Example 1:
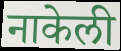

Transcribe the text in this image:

नाकेली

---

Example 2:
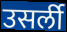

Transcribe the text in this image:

उसर्ली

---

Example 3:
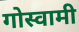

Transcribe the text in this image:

गोस्वामी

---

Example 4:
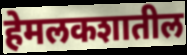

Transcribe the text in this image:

हेमलकशातील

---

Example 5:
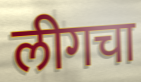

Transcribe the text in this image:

लीगचा